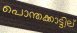
പൊന്തക്കാട്ടില്